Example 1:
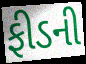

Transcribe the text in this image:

ફીડની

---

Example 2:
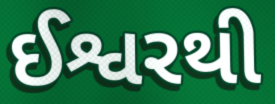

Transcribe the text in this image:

ઈશ્વરથી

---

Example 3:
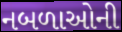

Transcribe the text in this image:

નબળાઓની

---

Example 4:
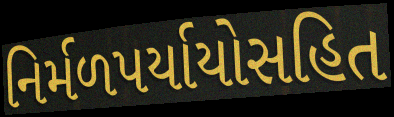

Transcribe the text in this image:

નિર્મળપર્યાયોસહિત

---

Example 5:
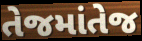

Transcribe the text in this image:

તેજમાંતેજ